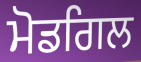
ਮੋਡਗਿਲ